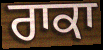
ਰਾਕਾ